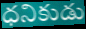
ధనికుడు